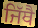
ਜਿੱਥੈ